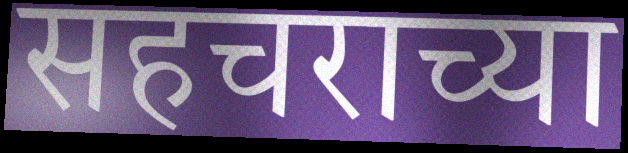
सहचराच्या